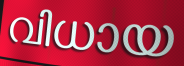
വിധായ